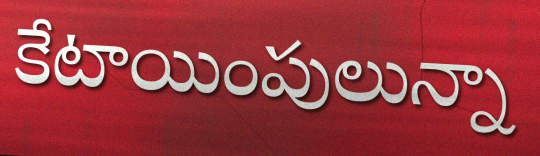
కేటాయింపులున్నా